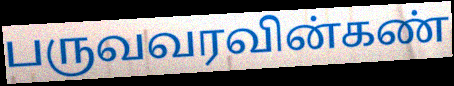
பருவவரவின்கண்